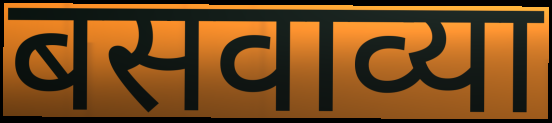
बसवाव्या